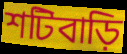
শটিবাড়ি